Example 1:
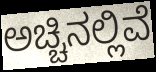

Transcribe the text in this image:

ಅಚ್ಚಿನಲ್ಲಿವೆ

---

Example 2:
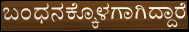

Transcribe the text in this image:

ಬಂಧನಕ್ಕೊಳಗಾಗಿದ್ದಾರೆ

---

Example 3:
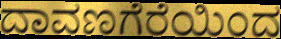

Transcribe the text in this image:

ದಾವಣಗೆರೆಯಿಂದ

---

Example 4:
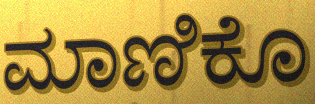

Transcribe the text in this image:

ಮಾಣಿಕೊ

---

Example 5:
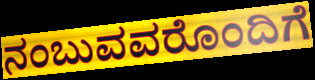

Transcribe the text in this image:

ನಂಬುವವರೊಂದಿಗೆ